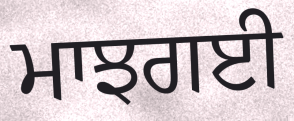
ਮਾਝਗਈ